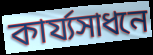
কার্য্যসাধনে